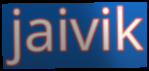
jaivik